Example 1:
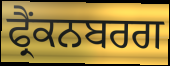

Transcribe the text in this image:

ਫ੍ਰੈਂਕਨਬਰਗ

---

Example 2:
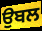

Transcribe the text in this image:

ਉਬਲ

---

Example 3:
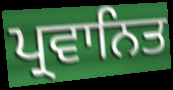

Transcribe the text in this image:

ਪ੍ਰਵਾਨਿਤ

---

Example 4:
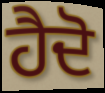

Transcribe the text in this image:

ਹੈਦੋ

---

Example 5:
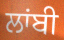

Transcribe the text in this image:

ਲਾਂਬੀ